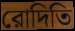
রোদিতি